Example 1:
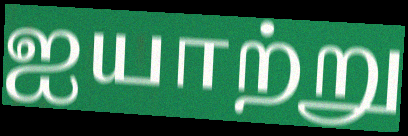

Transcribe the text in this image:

ஐயாற்று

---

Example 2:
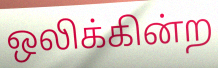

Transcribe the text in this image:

ஒலிக்கின்ற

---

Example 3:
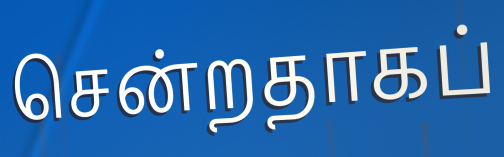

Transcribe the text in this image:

சென்றதாகப்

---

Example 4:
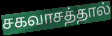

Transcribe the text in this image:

சகவாசத்தால்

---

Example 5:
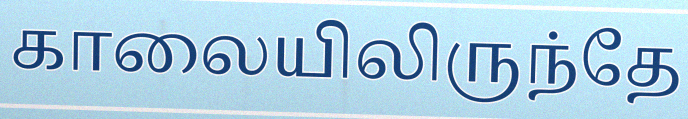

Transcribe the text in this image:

காலையிலிருந்தே